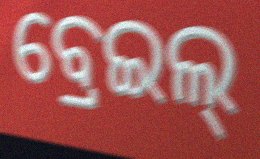
ବ୍ରେଇଲ୍